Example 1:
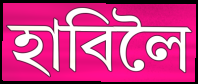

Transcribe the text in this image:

হাবিলৈ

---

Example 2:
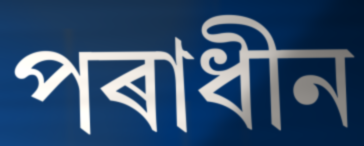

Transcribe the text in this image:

পৰাধীন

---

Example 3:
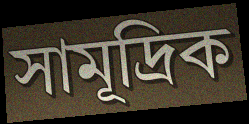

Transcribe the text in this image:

সামূদ্ৰিক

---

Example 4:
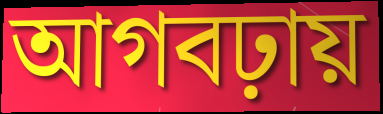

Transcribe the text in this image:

আগবঢ়ায়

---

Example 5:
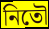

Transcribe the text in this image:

নিতৌ